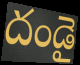
దండై